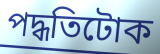
পদ্ধতিটোক